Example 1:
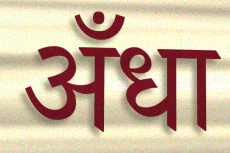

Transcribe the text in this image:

अँधा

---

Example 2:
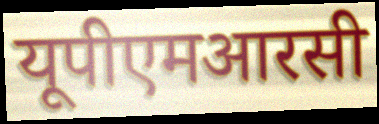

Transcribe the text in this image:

यूपीएमआरसी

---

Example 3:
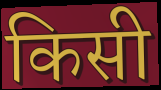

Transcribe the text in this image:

किसी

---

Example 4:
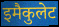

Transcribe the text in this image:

इमैकुलेट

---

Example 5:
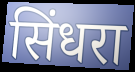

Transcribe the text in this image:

सिंधरा